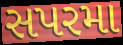
સપરમા